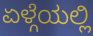
ಏಳ್ಗೆಯಲ್ಲಿ